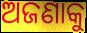
ଅଜଣାକୁ